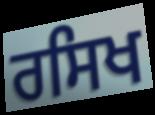
ਰਸਿਖ